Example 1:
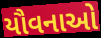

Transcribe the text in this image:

યૌવનાઓ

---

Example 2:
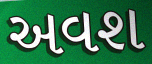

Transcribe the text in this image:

અવશ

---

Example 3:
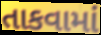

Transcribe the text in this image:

તાકવામાં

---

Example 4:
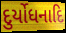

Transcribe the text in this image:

દુર્યોધનાદિ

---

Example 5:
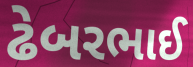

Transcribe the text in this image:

ઢેબરભાઈ